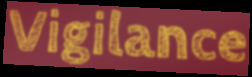
Vigilance